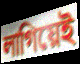
লাগিয়েই